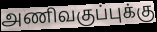
அணிவகுப்புக்கு